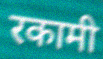
रकामी